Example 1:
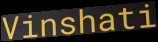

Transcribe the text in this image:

Vinshati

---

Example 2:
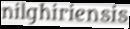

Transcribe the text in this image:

nilghiriensis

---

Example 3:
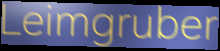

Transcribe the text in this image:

Leimgruber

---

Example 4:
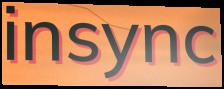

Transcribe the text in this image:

insync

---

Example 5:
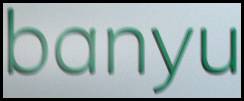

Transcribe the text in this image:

banyu